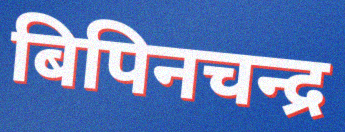
बिपिनचन्द्र